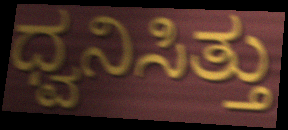
ಧ್ವನಿಸಿತ್ತು